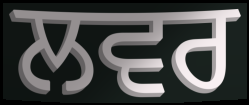
ਲਵਰ